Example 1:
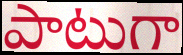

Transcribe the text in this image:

పాటుగా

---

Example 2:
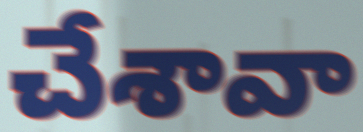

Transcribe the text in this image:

చేశావా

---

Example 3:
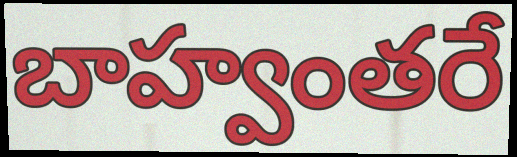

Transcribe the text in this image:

బాహ్వంతరే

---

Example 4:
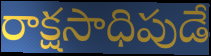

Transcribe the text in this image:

రాక్షసాధిపుడే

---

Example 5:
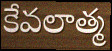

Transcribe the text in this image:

కేవలాత్మ